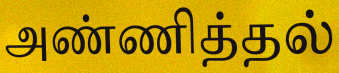
அண்ணித்தல்